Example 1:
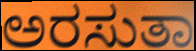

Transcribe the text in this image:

ಅರಸುತಾ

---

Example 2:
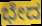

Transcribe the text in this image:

ಭೇದ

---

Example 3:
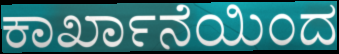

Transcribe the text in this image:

ಕಾರ್ಖಾನೆಯಿಂದ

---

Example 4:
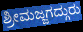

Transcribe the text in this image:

ಶ್ರೀಮಜ್ಜಗದ್ಗುರು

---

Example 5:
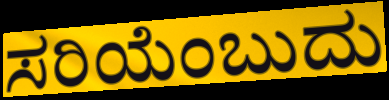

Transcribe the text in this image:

ಸರಿಯೆಂಬುದು